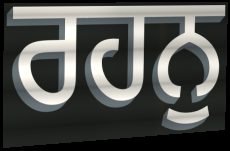
ਰਹਨੁ